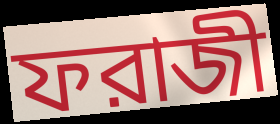
ফরাজী